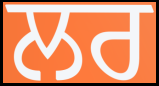
ਲਰ